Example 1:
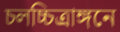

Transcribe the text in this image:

চলচ্চিত্রাঙ্গনে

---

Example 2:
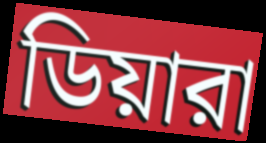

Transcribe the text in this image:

ডিয়ারা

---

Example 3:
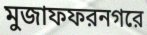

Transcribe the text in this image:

মুজাফফরনগরে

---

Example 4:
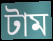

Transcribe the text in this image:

টাম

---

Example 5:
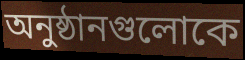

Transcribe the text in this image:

অনুষ্ঠানগুলোকে